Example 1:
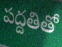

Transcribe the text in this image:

పద్దతితో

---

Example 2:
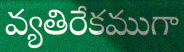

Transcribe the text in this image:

వ్యతిరేకముగా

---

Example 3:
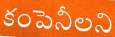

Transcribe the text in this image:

కంపెనీలని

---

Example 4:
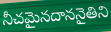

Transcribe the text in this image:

నీచమైనదాననైతిని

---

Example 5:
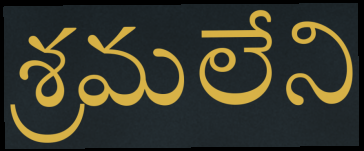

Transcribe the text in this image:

శ్రమలేని